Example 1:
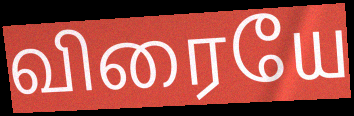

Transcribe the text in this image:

விரையே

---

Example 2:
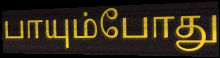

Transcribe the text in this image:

பாயும்போது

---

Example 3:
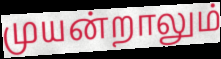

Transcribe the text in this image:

முயன்றாலும்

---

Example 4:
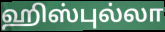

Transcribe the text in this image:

ஹிஸ்புல்லா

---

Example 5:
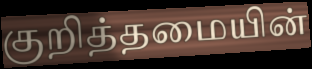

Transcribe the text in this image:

குறித்தமையின்